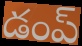
డంప్